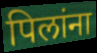
पिलांना